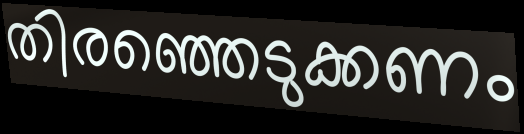
തിരഞ്ഞെടുക്കണം